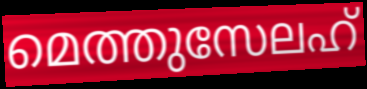
മെത്തുസേലഹ്